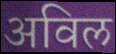
अविल